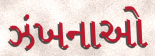
ઝંખનાઓ